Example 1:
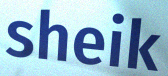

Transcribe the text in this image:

sheik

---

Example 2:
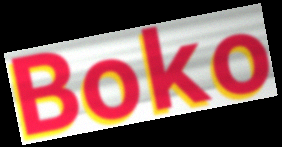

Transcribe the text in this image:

Boko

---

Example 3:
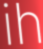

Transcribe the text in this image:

ih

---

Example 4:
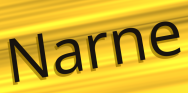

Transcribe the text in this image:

Narne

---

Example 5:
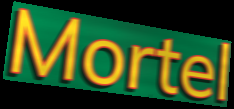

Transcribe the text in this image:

Mortel